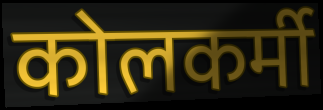
कोलकर्मी